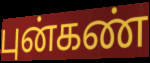
புன்கண்